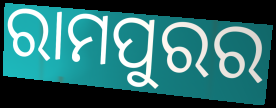
ରାମପୁରର